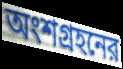
অংশগ্রহনের